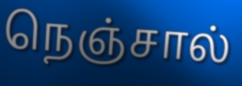
நெஞ்சால்